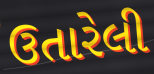
ઉતારેલી